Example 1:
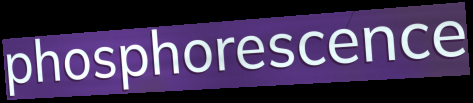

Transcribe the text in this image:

phosphorescence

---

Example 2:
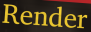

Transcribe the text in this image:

Render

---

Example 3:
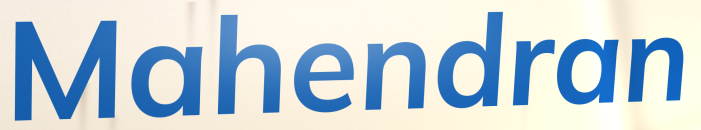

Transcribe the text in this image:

Mahendran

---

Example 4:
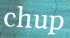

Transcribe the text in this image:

chup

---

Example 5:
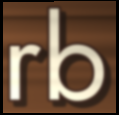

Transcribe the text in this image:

rb